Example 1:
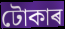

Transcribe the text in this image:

টোকাৰ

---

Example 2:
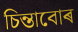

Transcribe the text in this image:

চিন্তাবোৰ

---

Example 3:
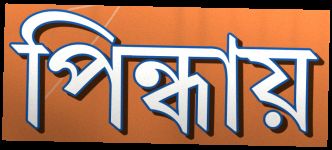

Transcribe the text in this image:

পিন্ধায়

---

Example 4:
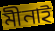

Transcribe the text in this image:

মীনাই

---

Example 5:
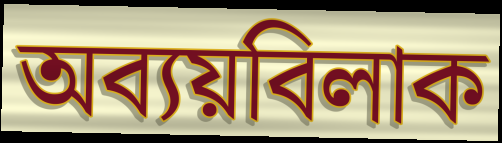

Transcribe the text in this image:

অব্যয়বিলাক